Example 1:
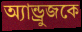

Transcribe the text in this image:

অ্যান্ড্রুজকে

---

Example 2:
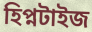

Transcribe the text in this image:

হিপ্নটাইজ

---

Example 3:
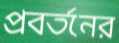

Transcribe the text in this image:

প্রবর্তনের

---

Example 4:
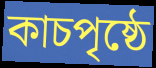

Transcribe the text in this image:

কাচপৃষ্ঠে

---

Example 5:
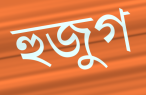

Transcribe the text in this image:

হুজুগ